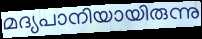
മദ്യപാനിയായിരുന്നു